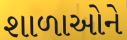
શાળાઓને